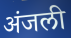
अंजली